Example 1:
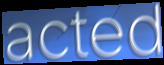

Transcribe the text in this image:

acted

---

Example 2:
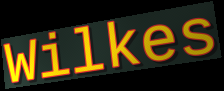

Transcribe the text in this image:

Wilkes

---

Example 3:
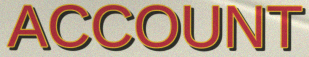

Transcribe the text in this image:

ACCOUNT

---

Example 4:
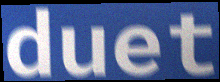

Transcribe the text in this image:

duet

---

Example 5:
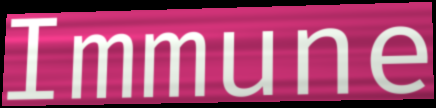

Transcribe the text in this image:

Immune